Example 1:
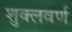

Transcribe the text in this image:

शुक्लवर्ण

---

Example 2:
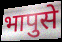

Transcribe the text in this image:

भापुसे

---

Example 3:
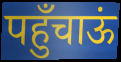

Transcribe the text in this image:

पहुँचाऊं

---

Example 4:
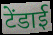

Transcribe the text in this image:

टेंडाई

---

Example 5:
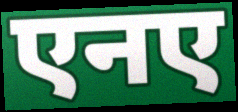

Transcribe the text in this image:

एनए